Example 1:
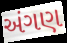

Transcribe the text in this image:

અંગણ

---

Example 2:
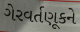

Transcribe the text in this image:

ગેરવર્તણૂકને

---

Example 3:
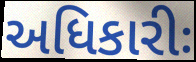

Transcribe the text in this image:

અધિકારીઃ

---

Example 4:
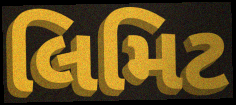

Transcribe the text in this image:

લિમિટ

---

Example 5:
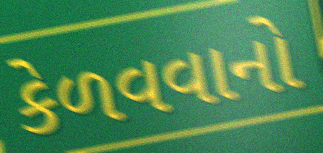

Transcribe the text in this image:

કેળવવાનો